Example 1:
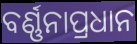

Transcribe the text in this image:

ବର୍ଣ୍ଣନାପ୍ରଧାନ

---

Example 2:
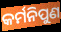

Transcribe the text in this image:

କର୍ମନିପୁଣ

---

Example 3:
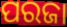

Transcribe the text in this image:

ପରଜା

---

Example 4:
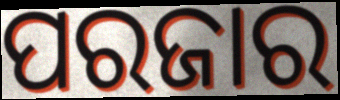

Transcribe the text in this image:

ପରଜାର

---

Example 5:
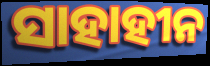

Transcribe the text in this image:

ସାହାହୀନ